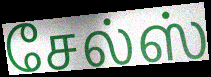
சேல்ஸ்